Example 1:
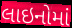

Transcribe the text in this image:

લાઇનોમાં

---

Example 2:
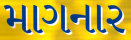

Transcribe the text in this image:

માગનાર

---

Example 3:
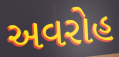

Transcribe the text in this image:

અવરોહ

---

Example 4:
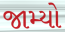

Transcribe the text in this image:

જામ્યો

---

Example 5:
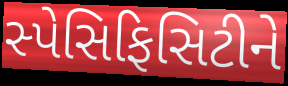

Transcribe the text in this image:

સ્પેસિફિસિટીને